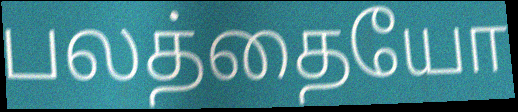
பலத்தையோ